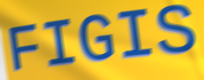
FIGIS